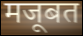
मजूबत